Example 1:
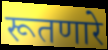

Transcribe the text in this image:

रूतणारे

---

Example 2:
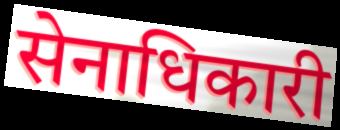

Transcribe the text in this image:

सेनाधिकारी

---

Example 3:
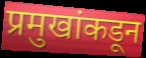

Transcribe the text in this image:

प्रमुखांकडून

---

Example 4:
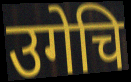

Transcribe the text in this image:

उगेचि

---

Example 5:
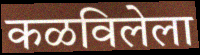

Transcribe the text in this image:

कळविलेला